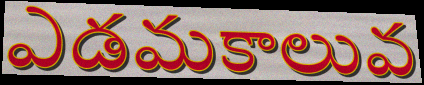
ఎడమకాలువ